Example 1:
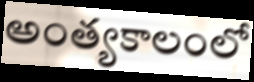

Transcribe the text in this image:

అంత్యకాలంలో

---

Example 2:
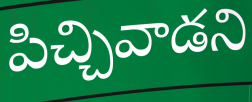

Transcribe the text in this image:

పిచ్చివాడని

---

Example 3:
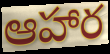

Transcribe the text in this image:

ఆహార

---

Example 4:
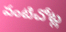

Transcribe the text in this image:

వంటిచోట్ల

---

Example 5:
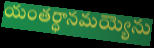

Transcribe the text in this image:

యంతర్ధానమయ్యెను